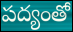
పద్యంతో